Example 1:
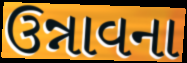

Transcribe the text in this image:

ઉન્નાવના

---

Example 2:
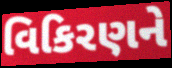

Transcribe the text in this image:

વિકિરણને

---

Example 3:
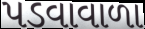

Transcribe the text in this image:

પડવાવાળા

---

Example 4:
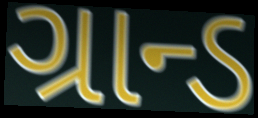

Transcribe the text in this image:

ગ્રાન્ડ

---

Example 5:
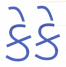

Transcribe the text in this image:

કેકે